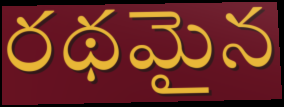
రథమైన